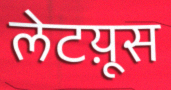
लेटय़ूस